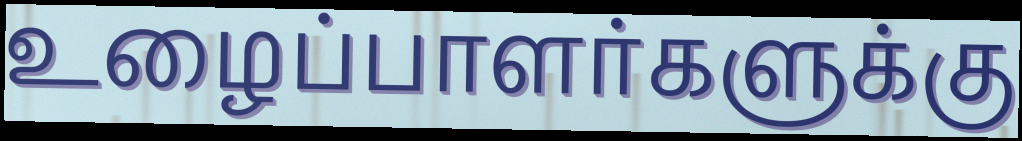
உழைப்பாளர்களுக்கு